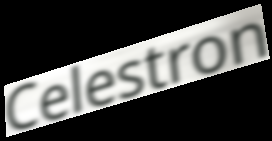
Celestron